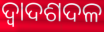
ଦ୍ୱାଦଶଦଳ